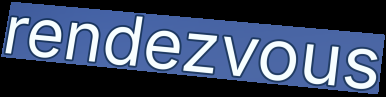
rendezvous